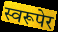
स्वरूपेर